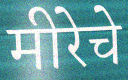
मीरेचे